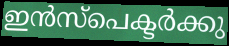
ഇൻസ്പെക്ടർക്കു